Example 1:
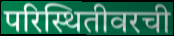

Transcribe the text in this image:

परिस्थितीवरची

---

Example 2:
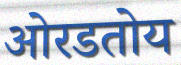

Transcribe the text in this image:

ओरडतोय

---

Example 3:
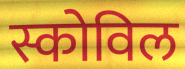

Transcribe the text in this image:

स्कोविल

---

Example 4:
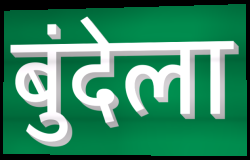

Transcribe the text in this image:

बुंदेला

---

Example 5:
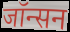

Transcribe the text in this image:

जॉन्सन